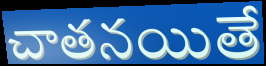
చాతనయితే